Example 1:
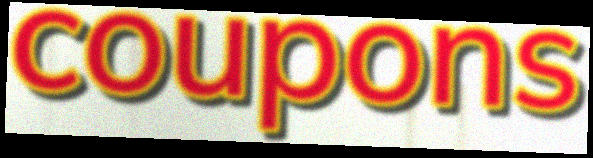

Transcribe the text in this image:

coupons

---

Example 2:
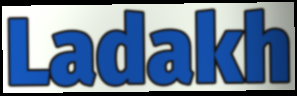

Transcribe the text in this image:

Ladakh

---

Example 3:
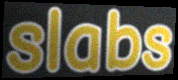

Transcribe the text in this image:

slabs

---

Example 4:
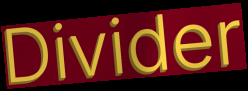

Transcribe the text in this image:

Divider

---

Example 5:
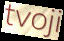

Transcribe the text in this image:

tvoji